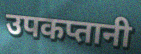
उपकप्तानी